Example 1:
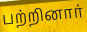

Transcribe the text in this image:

பற்றினார்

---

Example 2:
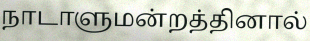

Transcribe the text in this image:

நாடாளுமன்றத்தினால்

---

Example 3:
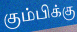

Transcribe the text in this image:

கும்பிக்கு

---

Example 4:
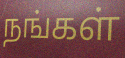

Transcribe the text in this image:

நங்கள்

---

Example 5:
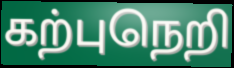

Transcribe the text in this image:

கற்புநெறி